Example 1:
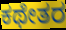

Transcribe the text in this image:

ಕಥೇತರ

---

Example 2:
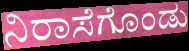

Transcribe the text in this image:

ನಿರಾಸೆಗೊಂಡು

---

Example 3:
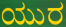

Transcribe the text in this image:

ಯುರ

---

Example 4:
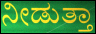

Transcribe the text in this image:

ನೀಡುತ್ತಾ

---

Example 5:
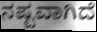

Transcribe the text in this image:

ನಷ್ಟವಾಗಿದೆ